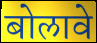
बोलावे